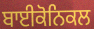
ਬਾਈਕੋਨਿਕਲ